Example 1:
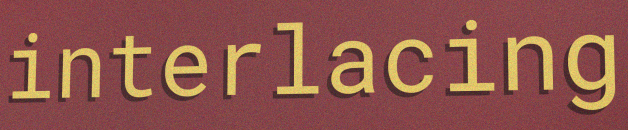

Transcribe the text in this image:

interlacing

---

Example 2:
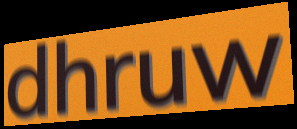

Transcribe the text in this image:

dhruw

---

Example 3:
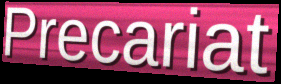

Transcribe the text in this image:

Precariat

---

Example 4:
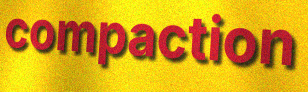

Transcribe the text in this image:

compaction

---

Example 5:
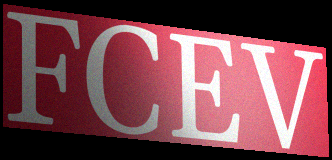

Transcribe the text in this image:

FCEV